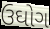
ઉઘોગ